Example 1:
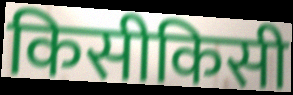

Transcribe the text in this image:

किसीकिसी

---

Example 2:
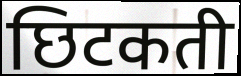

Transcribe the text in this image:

छिटकती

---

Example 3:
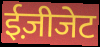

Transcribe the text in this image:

ईज़ीजेट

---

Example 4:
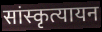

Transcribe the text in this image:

सांस्कृत्यायन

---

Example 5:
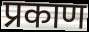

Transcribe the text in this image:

प्रकाण